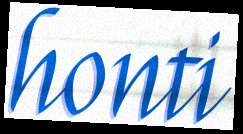
honti